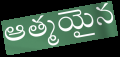
ఆత్మయైన